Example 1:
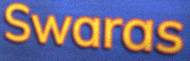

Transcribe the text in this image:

Swaras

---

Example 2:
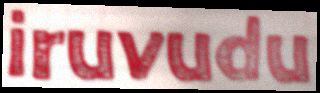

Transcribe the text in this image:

iruvudu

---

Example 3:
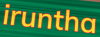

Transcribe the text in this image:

iruntha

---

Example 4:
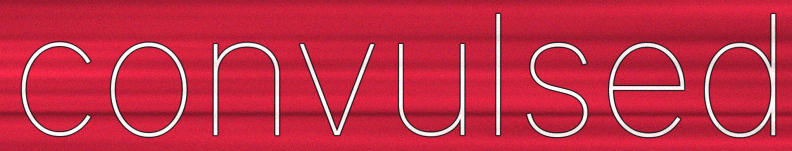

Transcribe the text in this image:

convulsed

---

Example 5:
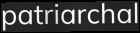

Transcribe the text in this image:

patriarchal